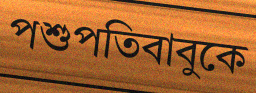
পশুপতিবাবুকে